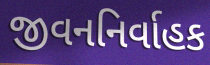
જીવનનિર્વાહક